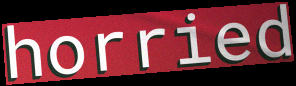
horried